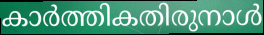
കാർത്തികതിരുനാൾ